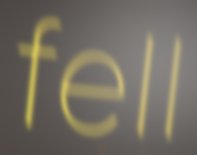
fell